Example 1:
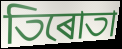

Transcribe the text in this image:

তিৰোতা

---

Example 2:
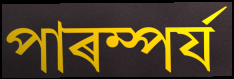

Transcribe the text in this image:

পাৰম্পৰ্য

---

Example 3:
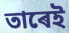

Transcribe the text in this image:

তাৰেই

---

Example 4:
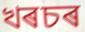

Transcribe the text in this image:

খৰচৰ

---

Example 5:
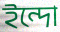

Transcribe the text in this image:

ইন্দো